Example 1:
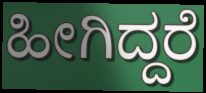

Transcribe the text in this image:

ಹೀಗಿದ್ದರೆ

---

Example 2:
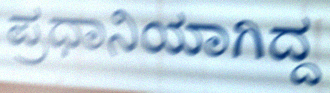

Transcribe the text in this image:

ಪ್ರಧಾನಿಯಾಗಿದ್ದ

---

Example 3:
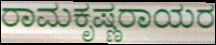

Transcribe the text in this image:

ರಾಮಕೃಷ್ಣರಾಯರ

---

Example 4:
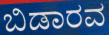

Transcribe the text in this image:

ಬಿಡಾರವ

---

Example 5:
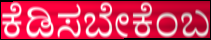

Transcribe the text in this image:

ಕೆಡಿಸಬೇಕೆಂಬ